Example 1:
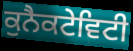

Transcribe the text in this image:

ਕੁਨੈਕਟੇਵਿਟੀ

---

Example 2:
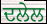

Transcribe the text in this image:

ਦਲੇਲ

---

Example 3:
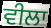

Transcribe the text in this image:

ਵੀਲਾ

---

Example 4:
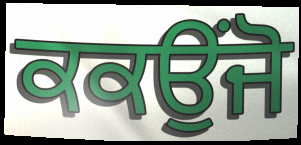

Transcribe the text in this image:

ਕਕਉਂਜੋ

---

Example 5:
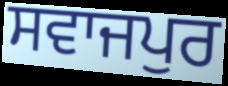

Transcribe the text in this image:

ਸਵਾਜਪੁਰ